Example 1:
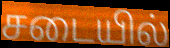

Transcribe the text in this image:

சடையில்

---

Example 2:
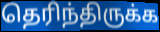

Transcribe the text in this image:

தெரிந்திருக்க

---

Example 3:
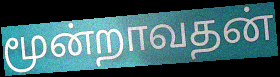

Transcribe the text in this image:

மூன்றாவதன்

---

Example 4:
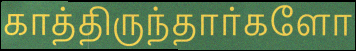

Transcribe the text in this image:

காத்திருந்தார்களோ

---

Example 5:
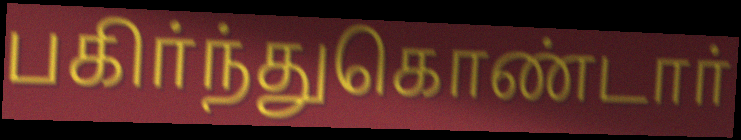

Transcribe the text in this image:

பகிர்ந்துகொண்டார்